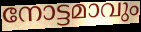
നോട്ടമാവും